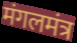
मंगलमंत्र